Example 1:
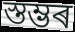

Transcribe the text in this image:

স্তম্ভৰ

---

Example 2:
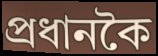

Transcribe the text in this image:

প্ৰধানকৈ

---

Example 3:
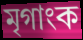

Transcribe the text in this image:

মৃগাংক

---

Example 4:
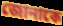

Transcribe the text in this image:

জোনাকে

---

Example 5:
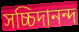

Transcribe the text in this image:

সচ্চিদানন্দ